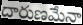
దారుణమేనా